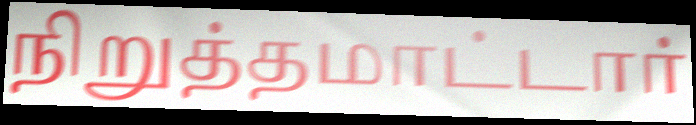
நிறுத்தமாட்டார்